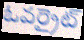
ఓవర్రైట్